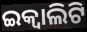
ଇକ୍ୱାଲିଟି